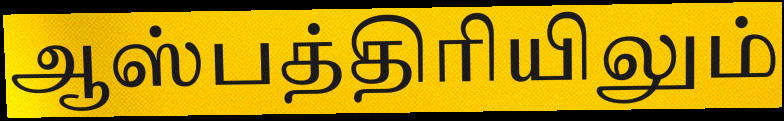
ஆஸ்பத்திரியிலும்